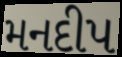
મનદીપ